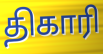
திகாரி